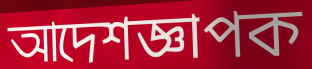
আদেশজ্ঞাপক